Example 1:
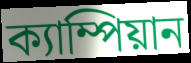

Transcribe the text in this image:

ক্যাম্পিয়ান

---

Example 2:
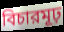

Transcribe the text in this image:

বিচারমূঢ়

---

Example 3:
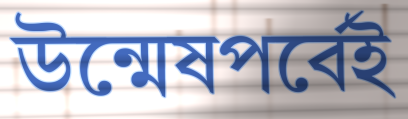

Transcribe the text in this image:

উন্মেষপর্বেই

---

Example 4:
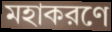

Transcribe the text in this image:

মহাকরণে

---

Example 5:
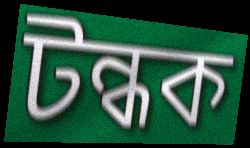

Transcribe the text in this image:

টন্ধক